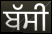
ਬੱਸੀ